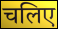
चलिए